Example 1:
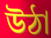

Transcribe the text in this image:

উঠা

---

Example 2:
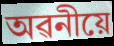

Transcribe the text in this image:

অৱনীয়ে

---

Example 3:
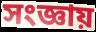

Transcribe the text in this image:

সংজ্ঞায়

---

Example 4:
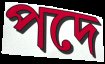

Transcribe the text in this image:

পদে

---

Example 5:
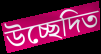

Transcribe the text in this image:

উচ্ছেদিত